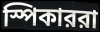
স্পিকাররা